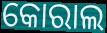
କୋରାଲ